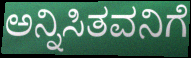
ಅನ್ನಿಸಿತವನಿಗೆ